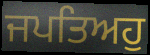
ਜਪਤਿਅਹੁ